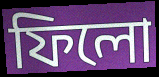
ফিলো